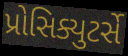
પ્રોસિક્યુટર્સે